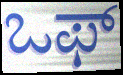
ಒಫ್